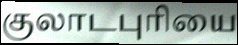
குலாடபுரியை